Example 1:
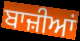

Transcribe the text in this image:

ਬਾਜ਼ੀਆਂ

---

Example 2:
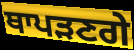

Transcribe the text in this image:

ਥਾਪੜਣਗੇ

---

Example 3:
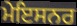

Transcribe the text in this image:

ਮੇਇਸਨਰ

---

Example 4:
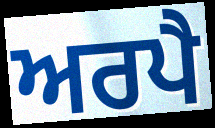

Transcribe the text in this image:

ਅਰਪੈ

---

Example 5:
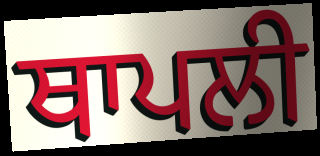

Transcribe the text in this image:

ਥਾਪਲੀ